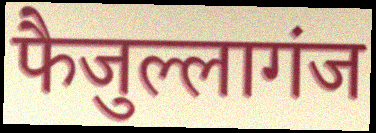
फैजुल्लागंज